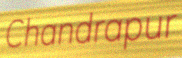
Chandrapur